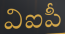
విఐపీ